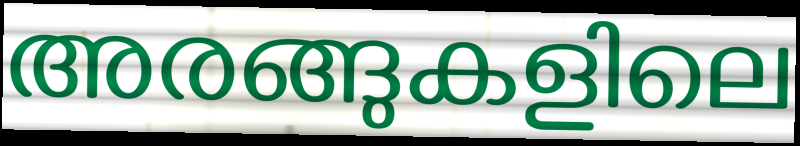
അരങ്ങുകളിലെ